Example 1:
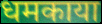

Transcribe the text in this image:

धमकाया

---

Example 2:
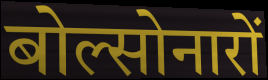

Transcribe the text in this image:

बोल्सोनारों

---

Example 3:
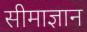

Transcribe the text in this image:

सीमाज्ञान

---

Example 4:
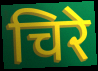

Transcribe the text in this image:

चिरे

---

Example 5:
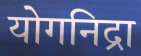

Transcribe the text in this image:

योगनिद्रा